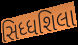
સિધ્ધશિલા